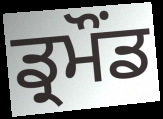
ਡ੍ਰਮੌਂਡ